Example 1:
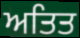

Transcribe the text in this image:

ਅਤਿਤ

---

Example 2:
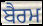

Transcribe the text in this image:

ਬੈਰਮ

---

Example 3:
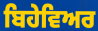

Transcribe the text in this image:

ਬਿਹੇਵਿਅਰ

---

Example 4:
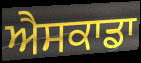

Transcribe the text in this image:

ਐਸਕਾਡਾ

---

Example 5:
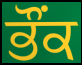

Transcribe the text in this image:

ਭੌਂਕ